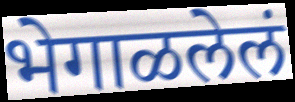
भेगाळलेलं